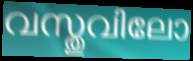
വസ്തുവിലോ